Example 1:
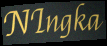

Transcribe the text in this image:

NIngka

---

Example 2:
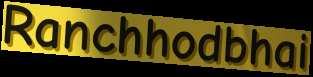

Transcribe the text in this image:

Ranchhodbhai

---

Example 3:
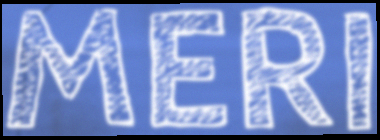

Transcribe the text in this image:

MERI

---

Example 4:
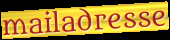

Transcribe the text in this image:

mailadresse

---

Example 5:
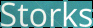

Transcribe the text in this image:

Storks